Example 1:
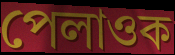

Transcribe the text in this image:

পেলাওক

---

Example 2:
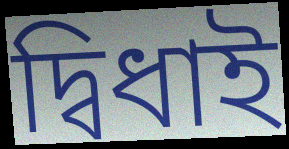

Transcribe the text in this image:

দ্বিধাই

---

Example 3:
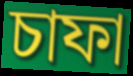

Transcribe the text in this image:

চাফা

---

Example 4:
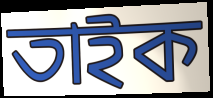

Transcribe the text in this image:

তাইক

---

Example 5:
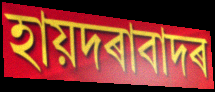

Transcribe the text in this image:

হায়দৰাবাদৰ